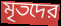
মৃতদের